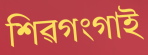
শিৱগংগাই